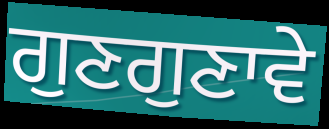
ਗੁਣਗੁਣਾਵੇ